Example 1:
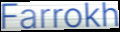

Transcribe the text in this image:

Farrokh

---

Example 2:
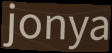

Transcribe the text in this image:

jonya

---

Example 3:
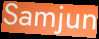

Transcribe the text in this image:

Samjun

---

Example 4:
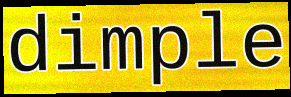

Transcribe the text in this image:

dimple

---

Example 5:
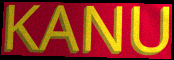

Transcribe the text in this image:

KANU